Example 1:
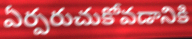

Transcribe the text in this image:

ఏర్పరుచుకోవడానికి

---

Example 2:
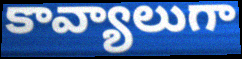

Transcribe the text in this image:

కావ్యాలుగా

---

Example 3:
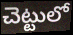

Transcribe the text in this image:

చెట్టులో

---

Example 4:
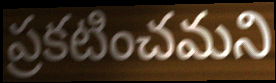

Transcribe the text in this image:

ప్రకటించమని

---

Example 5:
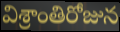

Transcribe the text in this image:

విశ్రాంతిరోజున